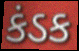
કંડક